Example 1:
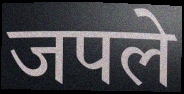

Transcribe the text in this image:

जपले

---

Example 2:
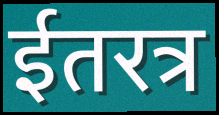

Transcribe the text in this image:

ईतरत्र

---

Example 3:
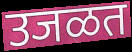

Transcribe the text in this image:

उजळत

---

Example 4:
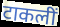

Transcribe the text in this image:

टाकलीं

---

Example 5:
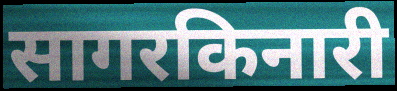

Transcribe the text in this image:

सागरकिनारी